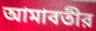
আমাবতীর